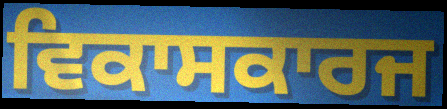
ਵਿਕਾਸਕਾਰਜ